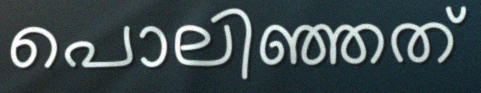
പൊലിഞ്ഞത്